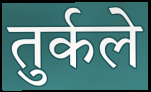
तुर्कले